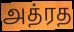
அத்ரத